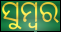
ସୁମ୍ବର